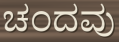
ಚಂದವು